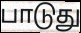
பாடுது